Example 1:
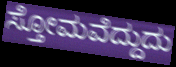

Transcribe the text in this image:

ಸ್ತೋಮವೆದ್ದುದು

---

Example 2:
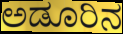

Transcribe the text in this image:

ಅಡೂರಿನ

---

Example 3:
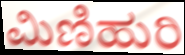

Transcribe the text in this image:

ಮಿಣಿಹುರಿ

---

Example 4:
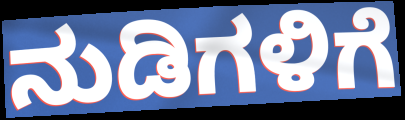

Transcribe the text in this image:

ನುಡಿಗಳಿಗೆ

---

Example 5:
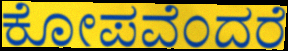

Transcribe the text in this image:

ಕೋಪವೆಂದರೆ